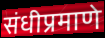
संधीप्रमाणे